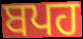
ਬਪਹ